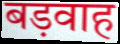
बड़वाह